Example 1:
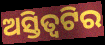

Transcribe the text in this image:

ଅସ୍ତିତ୍ୱଟିର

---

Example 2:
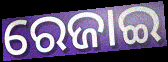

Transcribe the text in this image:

ରେଜାଇ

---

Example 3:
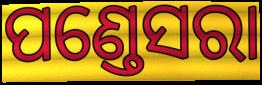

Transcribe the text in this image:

ପଣ୍ଡେସରା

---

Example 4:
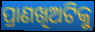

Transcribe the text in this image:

ପ୍ରାଣଖିଅଟିକୁ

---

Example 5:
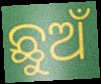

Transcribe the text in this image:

ଛୁଅଁ